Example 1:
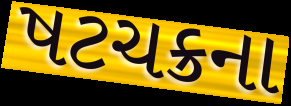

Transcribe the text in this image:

ષટચક્રના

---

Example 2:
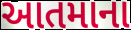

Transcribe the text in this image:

આતમાના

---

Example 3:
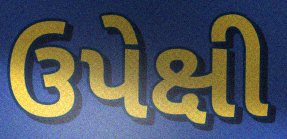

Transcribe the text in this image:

ઉપેક્ષી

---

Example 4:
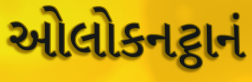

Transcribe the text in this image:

ઓલોકનટ્ઠાનં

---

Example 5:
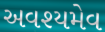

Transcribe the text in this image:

અવશ્યમેવ